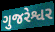
ગુજરેશ્વર